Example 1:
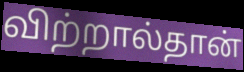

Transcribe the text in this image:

விற்றால்தான்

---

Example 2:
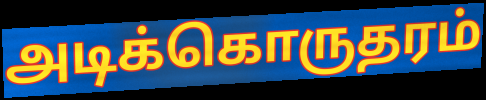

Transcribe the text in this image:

அடிக்கொருதரம்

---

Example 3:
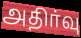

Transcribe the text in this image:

அதிர்வு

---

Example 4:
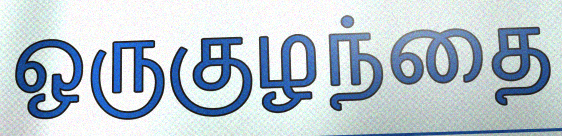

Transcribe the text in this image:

ஒருகுழந்தை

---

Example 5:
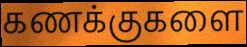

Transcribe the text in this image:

கணக்குகளை